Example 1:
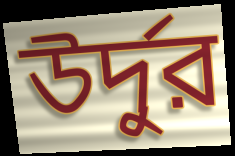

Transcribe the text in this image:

উর্দুর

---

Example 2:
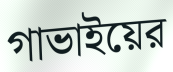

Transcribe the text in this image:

গাভাইয়ের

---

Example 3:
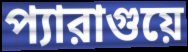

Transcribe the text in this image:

প্যারাগুয়ে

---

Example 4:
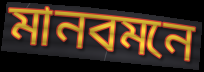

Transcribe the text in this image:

মানবমনে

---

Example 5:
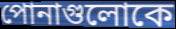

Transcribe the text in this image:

পোনাগুলোকে